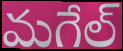
మగేల్